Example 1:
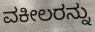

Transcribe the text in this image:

ವಕೀಲರನ್ನು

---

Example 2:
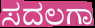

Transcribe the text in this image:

ಸದಲಗಾ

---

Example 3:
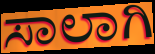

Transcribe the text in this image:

ಸಾಲಾಗಿ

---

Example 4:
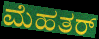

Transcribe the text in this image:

ಮೆಹತರ್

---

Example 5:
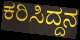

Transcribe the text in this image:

ಕರಿಸಿದ್ದನ